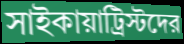
সাইকায়াট্রিস্টদের